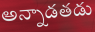
అన్నాడతడు